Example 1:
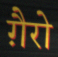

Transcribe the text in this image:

ग़ैरो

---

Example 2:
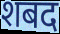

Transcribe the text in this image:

शबद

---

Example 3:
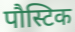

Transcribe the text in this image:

पौस्टिक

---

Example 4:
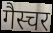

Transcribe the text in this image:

गैस्चर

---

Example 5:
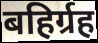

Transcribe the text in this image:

बहिर्ग्रह